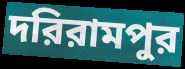
দরিরামপুর